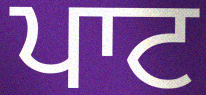
ਪਾਟ